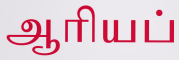
ஆரியப்